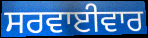
ਸਰਵਾਈਵਾਰ